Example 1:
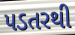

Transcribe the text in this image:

પડતરથી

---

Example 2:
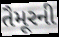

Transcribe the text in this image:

તૈમૂરની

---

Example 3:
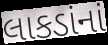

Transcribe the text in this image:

લાકડાંનાં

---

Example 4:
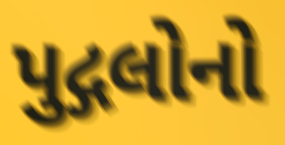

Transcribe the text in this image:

પુદ્ગલોનો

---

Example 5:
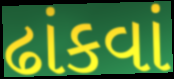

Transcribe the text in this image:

ઢાંકવાં